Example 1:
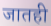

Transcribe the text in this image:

जातही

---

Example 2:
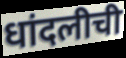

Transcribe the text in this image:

धांदलीची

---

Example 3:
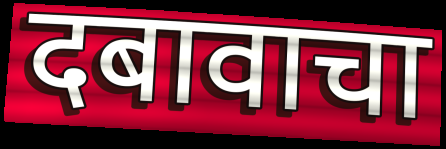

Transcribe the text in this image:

दबावाचा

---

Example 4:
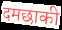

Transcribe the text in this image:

दमछाकी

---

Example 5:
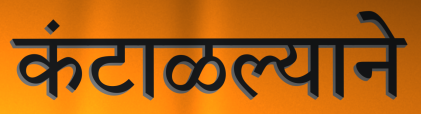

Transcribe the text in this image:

कंटाळल्याने